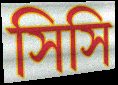
সিসি